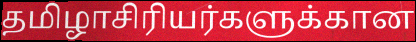
தமிழாசிரியர்களுக்கான